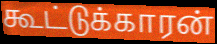
கூட்டுக்காரன்